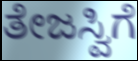
ತೇಜಸ್ವಿಗೆ